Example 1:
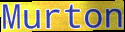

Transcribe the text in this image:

Murton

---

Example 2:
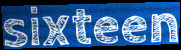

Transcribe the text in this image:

sixteen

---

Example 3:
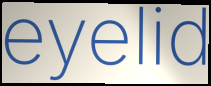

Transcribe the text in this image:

eyelid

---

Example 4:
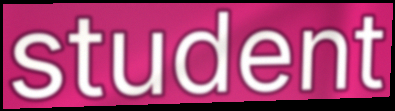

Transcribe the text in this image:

student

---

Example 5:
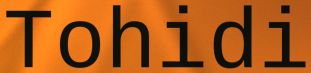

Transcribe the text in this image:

Tohidi